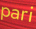
pari